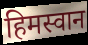
हिमस्वान